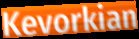
Kevorkian